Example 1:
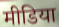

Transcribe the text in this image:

मीडिया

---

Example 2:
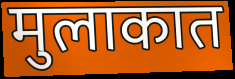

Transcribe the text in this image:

मुलाकात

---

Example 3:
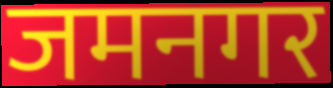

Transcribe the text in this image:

जमनगर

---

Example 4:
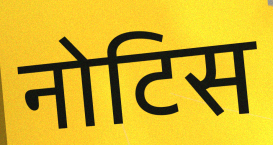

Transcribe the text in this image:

नोटिस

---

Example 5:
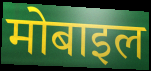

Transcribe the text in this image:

मोबाइल